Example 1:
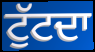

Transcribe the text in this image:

ਟੁੱਟਦਾ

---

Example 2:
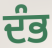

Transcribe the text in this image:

ਦੰਭ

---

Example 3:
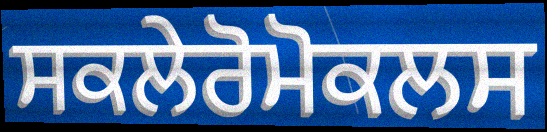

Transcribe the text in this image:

ਸਕਲੇਰੋਮੋਕਲਸ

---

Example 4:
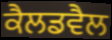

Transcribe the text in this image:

ਕੈਲਡਵੈਲ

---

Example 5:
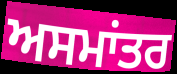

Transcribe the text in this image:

ਅਸਮਾਂਤਰ